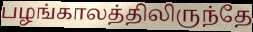
பழங்காலத்திலிருந்தே